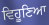
ਵਿਹੂਣਿਆ